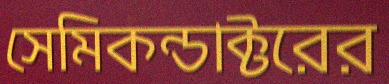
সেমিকন্ডাক্টরের